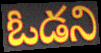
ఓడని